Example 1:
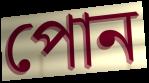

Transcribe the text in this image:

পোন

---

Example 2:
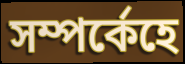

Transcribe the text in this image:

সম্পৰ্কেহে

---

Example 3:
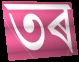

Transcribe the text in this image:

তৰ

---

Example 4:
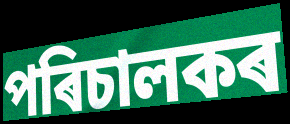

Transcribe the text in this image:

পৰিচালকৰ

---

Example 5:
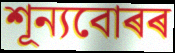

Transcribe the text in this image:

শূন্যবোৰৰ